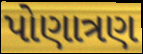
પોણાત્રણ